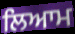
ਲਿਆਮ